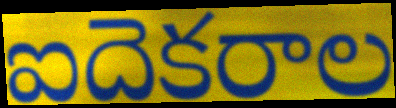
ఐదెకరాల